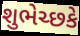
શુભેચ્છકે